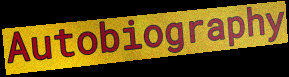
Autobiography